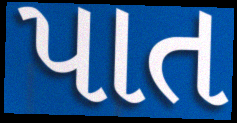
પાત